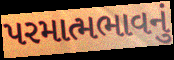
પરમાત્મભાવનું